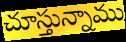
చూస్తున్నాము